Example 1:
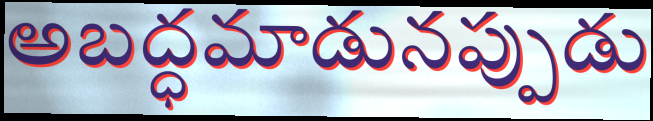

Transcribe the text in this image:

అబద్ధమాడునప్పుడు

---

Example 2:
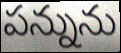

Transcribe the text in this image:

పన్నును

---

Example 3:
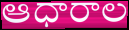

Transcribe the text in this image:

ఆధారాల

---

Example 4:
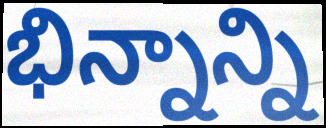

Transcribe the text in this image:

భిన్నాన్ని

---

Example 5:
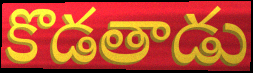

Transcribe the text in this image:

కొడతాడు